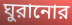
ঘুরানোর